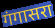
गंगासरा